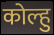
कोल्हु